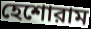
হেশোরাম